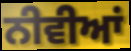
ਨੀਵੀਆਂ